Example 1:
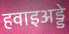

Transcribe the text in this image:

हवाइअड्डे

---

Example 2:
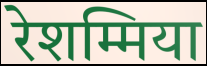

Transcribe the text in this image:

रेशम्मिया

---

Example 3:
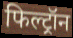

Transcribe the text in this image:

फिल्ट्रॉन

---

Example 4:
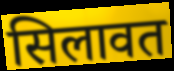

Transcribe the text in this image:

सिलावत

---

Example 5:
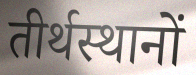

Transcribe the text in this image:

तीर्थस्थानों